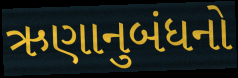
ઋણાનુબંધનો